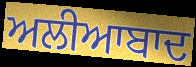
ਅਲੀਆਬਾਦ